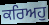
ਕਰਿਅਹੁ